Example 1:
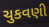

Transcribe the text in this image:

ચુકવણી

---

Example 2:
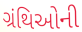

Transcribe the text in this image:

ગ્રંથિઓની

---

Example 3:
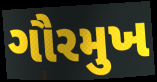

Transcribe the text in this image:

ગૌરમુખ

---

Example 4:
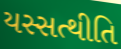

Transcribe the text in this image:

યસ્સત્થીતિ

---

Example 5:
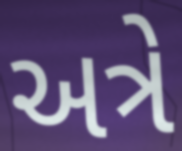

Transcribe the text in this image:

અત્રે